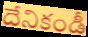
దేనికండీ